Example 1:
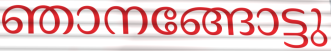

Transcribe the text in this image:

ഞാനങ്ങോട്ടു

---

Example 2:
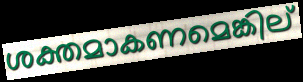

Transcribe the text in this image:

ശക്തമാകണമെങ്കില്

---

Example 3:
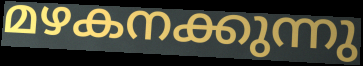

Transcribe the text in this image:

മഴകനക്കുന്നു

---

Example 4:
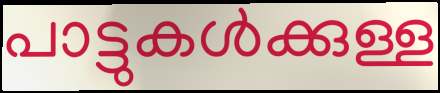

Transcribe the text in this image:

പാട്ടുകൾക്കുള്ള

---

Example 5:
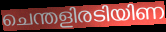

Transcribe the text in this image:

ചെന്തളിരടിയിണ